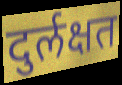
दुर्लक्षत